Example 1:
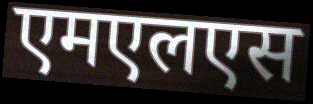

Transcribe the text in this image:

एमएलएस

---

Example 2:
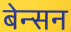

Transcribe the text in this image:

बेन्सन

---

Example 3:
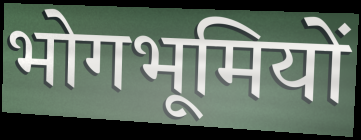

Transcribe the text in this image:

भोगभूमियों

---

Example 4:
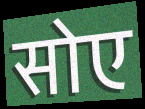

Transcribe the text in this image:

सोए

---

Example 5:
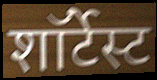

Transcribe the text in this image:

शॉर्टेस्ट